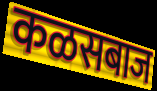
कळसबाज